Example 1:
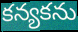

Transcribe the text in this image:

కన్యకను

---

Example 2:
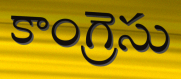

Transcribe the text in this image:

కాంగ్రెసు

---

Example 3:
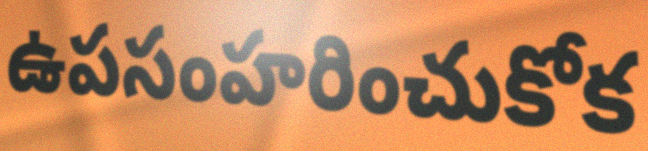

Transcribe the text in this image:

ఉపసంహరించుకోక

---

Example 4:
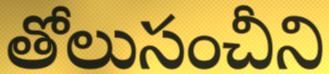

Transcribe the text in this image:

తోలుసంచీని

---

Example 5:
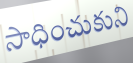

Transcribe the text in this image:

సాధించుకుని